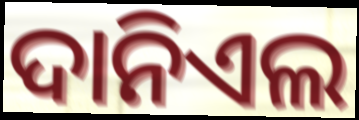
ଦାନିଏଲ